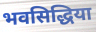
भवसिद्धिया